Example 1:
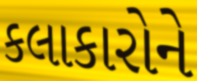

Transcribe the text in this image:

કલાકારોને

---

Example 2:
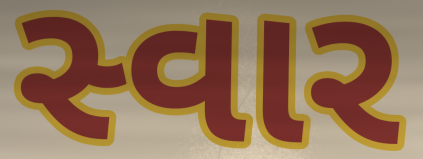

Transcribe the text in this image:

સ્વાર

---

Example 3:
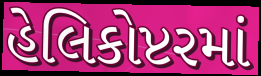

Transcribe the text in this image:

હેલિકોપ્ટરમાં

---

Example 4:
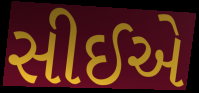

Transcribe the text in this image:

સીઈએ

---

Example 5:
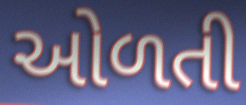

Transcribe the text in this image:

ઓળતી